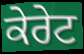
ਕੇਰੇਟ